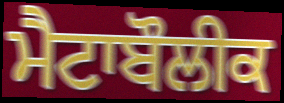
ਮੈਟਾਬੌਲੀਕ